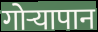
गोऱ्यापान